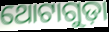
ଥୋଟାଗୁଡ଼ା